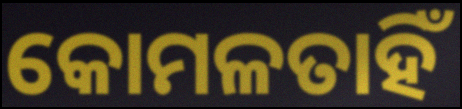
କୋମଳତାହିଁ